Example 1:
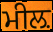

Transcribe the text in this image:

ਮੀਲ਼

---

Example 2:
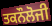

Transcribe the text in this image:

ਤਕਨੌਲੋਜੀ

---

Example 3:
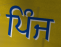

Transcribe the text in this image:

ਪਿੰਜ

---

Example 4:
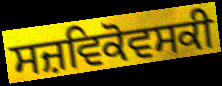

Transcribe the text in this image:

ਸਜ਼ਵਿਕੋਵਸਕੀ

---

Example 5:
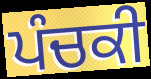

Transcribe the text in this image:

ਪੰਚਕੀ